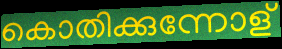
കൊതിക്കുന്നോള്